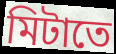
মিটাতে